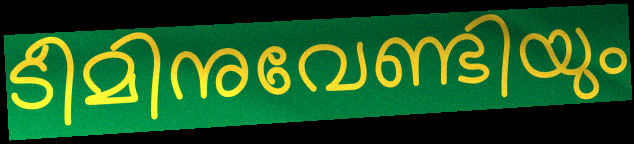
ടീമിനുവേണ്ടിയും